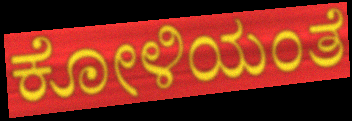
ಕೋಳಿಯಂತೆ